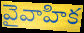
వైవాహిక